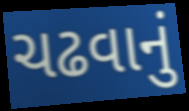
ચઢવાનું